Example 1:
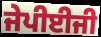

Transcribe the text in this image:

ਜੇਪੀਈਜੀ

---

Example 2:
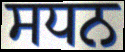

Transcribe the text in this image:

ਸਧਨ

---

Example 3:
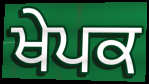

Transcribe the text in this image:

ਖੇਪਕ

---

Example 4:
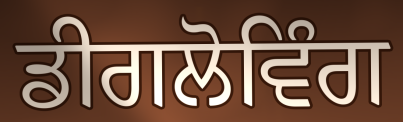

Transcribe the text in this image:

ਡੀਗਲੋਵਿੰਗ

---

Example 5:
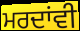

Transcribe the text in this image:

ਮਰਦਾਂਵੀ